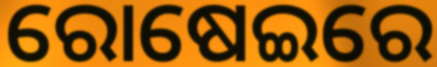
ରୋଷେଇରେ